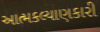
આત્મકલ્યાણકારી